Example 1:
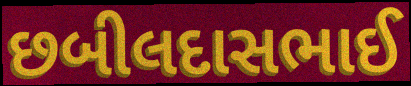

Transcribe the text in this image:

છબીલદાસભાઈ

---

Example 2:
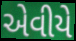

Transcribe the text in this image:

એવીયે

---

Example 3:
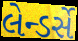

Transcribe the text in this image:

લેન્ડર્સે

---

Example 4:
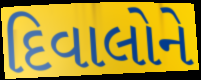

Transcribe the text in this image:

દિવાલોને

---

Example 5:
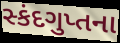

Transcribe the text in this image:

સ્કંદગુપ્તના